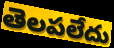
తెలపలేదు